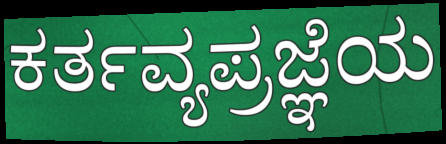
ಕರ್ತವ್ಯಪ್ರಜ್ಞೆಯ